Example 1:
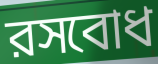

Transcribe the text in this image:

রসবোধ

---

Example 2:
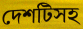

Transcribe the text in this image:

দেশটিসহ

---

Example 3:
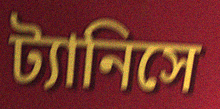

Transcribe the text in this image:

ট্যানিসে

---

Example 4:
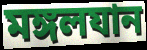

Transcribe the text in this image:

মঙ্গলযান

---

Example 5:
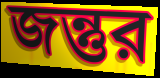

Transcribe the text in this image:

জন্তুর